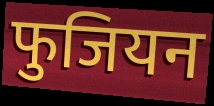
फुजियन